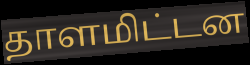
தாளமிட்டன